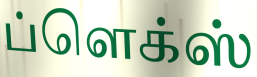
ப்ளெக்ஸ்